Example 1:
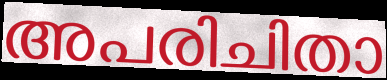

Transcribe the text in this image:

അപരിചിതാ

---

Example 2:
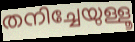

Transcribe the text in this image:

തനിച്ചേയുള്ളൂ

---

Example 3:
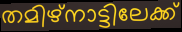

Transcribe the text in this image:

തമിഴ്നാട്ടിലേക്ക്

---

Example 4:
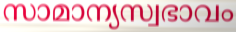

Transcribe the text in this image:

സാമാന്യസ്വഭാവം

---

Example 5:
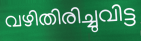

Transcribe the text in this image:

വഴിതിരിച്ചുവിട്ട